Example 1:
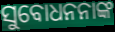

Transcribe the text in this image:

ସୁବୋଧନନାଙ୍କ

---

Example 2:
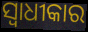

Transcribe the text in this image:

ସ୍ୱାଧୀକାର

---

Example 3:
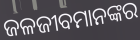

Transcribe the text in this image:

ଜଳଜୀବମାନଙ୍କର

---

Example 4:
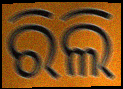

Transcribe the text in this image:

ରିଲି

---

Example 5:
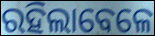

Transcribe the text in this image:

ରହିଲାବେଳେ